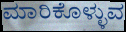
ಮಾರಿಕೊಳ್ಳುವ